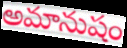
అమానుషం